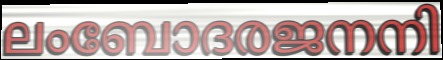
ലംബോദരജനനി